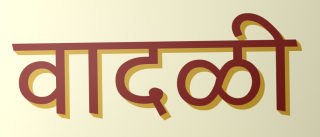
वादळी